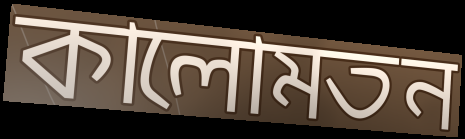
কালোমতন